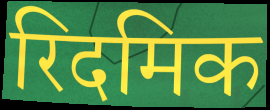
रिदमिक